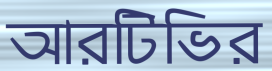
আরটিভির